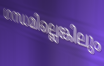
ഗന്ധമില്ലെങ്കിലും